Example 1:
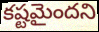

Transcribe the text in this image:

కష్టమైందని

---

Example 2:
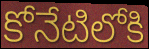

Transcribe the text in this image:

కోనేటిలోకి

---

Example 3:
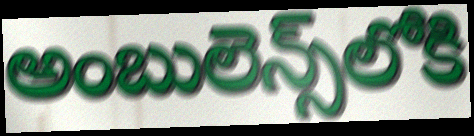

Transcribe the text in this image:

అంబులెన్స్‌లోకి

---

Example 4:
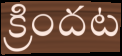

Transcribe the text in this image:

క్రిందట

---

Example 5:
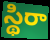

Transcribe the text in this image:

స్థిరా